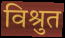
विश्रुत